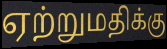
ஏற்றுமதிக்கு